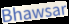
Bhawsar